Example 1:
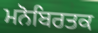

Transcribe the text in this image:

ਮਨੋਬਿਰਤਕ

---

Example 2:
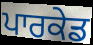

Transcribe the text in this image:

ਪਾਰਕੇਡ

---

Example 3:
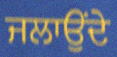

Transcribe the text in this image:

ਜਲਾਉਂਦੇ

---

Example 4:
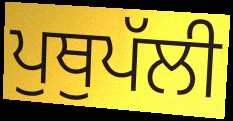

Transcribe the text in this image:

ਪੁਥੁਪੱਲੀ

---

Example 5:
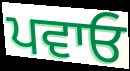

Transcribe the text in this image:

ਪਵਾਓ